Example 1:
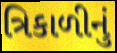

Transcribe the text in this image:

ત્રિકાળીનું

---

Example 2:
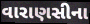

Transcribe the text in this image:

વારાણસીના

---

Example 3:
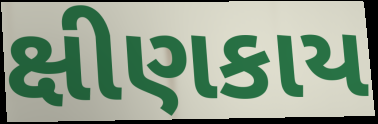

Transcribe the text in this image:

ક્ષીણકાય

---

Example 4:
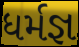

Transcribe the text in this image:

ધર્મજ્ઞ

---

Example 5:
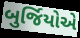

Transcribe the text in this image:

બુર્જિયોએ